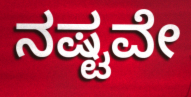
ನಷ್ಟವೇ